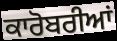
ਕਾਰੋਬਰੀਆਂ